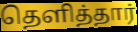
தெளித்தார்